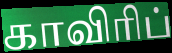
காவிரிப்